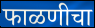
फाळणीचा